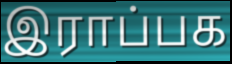
இராப்பக